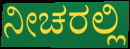
ನೀಚರಲ್ಲಿ